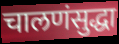
चालणंसुद्धा